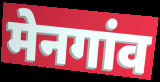
मेनगांव